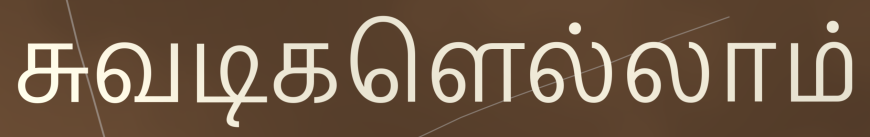
சுவடிகளெல்லாம்